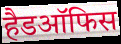
हैडऑफिस